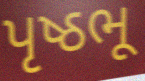
પૃષ્ઠભૂ